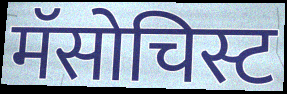
मॅसोचिस्ट